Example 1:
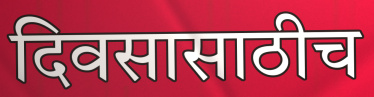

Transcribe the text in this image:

दिवसासाठीच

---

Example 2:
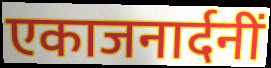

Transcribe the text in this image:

एकाजनार्दनीं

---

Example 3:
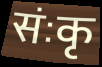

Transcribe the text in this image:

संःकृ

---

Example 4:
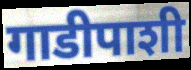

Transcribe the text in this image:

गाडीपाशी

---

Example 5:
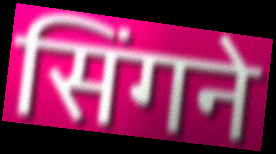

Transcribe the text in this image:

सिंगने